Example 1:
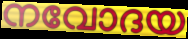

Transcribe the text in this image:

നവോദയ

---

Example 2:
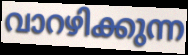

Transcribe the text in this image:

വാറഴിക്കുന്ന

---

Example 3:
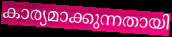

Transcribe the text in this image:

കാര്യമാക്കുന്നതായി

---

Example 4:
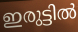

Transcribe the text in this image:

ഇരുട്ടിൽ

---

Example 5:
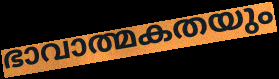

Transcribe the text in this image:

ഭാവാത്മകതയും